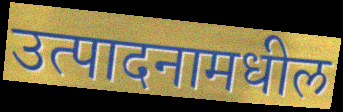
उत्पादनामधील